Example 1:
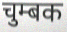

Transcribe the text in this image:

चुम्बक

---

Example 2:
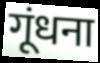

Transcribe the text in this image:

गूंधना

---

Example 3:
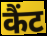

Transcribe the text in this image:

कैंट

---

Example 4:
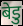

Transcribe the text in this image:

बेडु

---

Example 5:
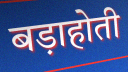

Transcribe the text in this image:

बड़ाहोती